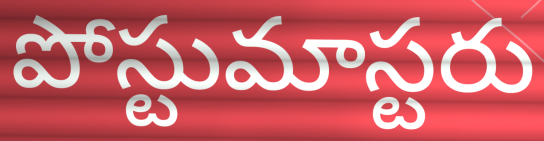
పోస్టుమాస్టరు